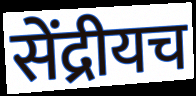
सेंद्रीयच